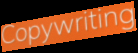
Copywriting